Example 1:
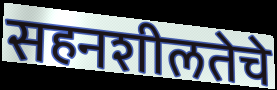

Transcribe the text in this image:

सहनशीलतेचे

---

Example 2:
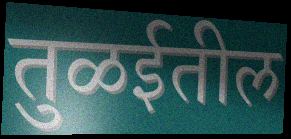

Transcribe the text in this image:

तुळईतील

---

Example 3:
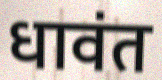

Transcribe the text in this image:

धावंत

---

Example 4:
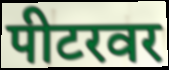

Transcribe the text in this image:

पीटरवर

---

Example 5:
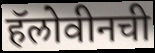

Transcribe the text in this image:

हॅलोवीनची